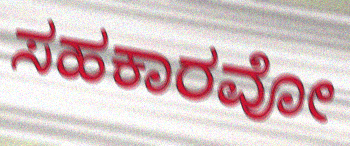
ಸಹಕಾರವೋ